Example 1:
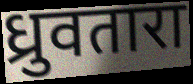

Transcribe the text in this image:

ध्रुवतारा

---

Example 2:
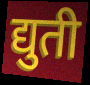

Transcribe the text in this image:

द्युती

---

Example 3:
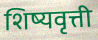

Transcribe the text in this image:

शिष्यवृत्ती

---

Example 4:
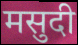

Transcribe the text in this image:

मसुदी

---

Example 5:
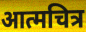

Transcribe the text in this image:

आत्मचित्र